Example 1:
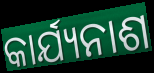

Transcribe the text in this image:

କାର୍ଯ୍ୟନାଶ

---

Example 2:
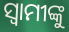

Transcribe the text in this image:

ସ୍ବାମୀଙ୍କୁ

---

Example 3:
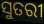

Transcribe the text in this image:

ସୁତରୀ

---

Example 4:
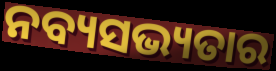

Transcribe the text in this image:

ନବ୍ୟସଭ୍ୟତାର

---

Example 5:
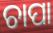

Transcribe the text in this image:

ଚାପା